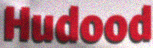
Hudood